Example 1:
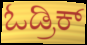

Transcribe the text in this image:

ಓಡ್ರಿಕ್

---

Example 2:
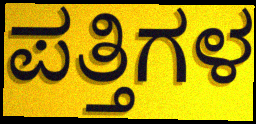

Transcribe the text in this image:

ಪತ್ತಿಗಳ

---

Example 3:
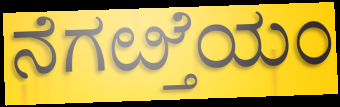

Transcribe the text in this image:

ನೆಗೞ್ತೆಯಂ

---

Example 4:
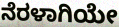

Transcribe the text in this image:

ನೆರಳಾಗಿಯೇ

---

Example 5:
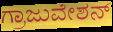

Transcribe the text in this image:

ಗ್ರಾಜುವೇಶನ್